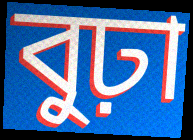
বুঢ়া